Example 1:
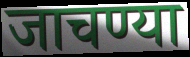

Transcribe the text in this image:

जाचण्या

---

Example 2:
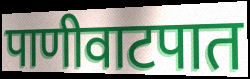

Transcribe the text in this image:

पाणीवाटपात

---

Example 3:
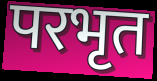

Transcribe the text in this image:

परभृत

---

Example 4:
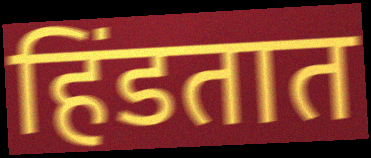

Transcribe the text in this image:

हिंडतात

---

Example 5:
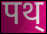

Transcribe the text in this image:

पथ्